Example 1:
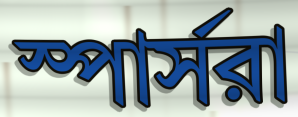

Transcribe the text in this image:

স্পার্সরা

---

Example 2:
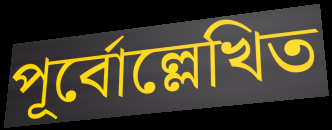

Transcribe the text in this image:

পূর্বোল্লেখিত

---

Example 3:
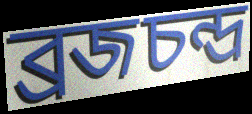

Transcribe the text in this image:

ব্রজচন্দ্র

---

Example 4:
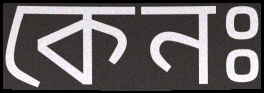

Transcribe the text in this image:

কেনঃ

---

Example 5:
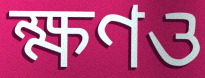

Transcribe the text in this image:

ক্ষণও